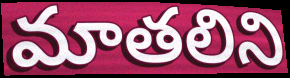
మాతలిని